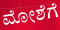
ಮೋಶೆಗೆ